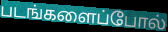
படங்களைப்போல்